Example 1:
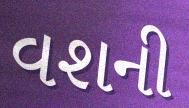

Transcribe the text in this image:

વશની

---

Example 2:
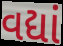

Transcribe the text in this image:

વદ્યાં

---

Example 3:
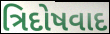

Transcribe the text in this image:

ત્રિદોષવાદ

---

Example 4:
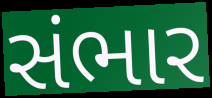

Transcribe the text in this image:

સંભાર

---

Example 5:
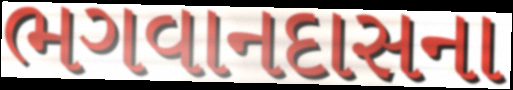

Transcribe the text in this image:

ભગવાનદાસના